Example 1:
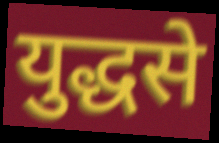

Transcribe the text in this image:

युद्धसे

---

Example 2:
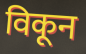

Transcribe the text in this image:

विकून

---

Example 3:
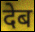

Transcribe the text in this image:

देब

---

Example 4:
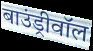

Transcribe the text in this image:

बाउंड्रीवॉल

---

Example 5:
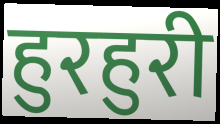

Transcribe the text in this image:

हुरहुरी